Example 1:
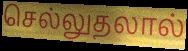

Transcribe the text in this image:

செல்லுதலால்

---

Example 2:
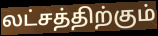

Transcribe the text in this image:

லட்சத்திற்கும்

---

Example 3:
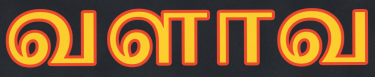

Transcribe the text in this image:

வளாவ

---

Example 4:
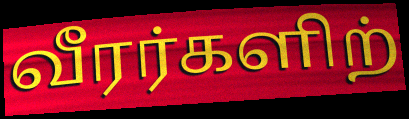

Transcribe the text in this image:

வீரர்களிற்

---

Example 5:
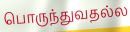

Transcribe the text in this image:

பொருந்துவதல்ல